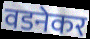
वडनेकर